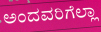
ಅಂದವರಿಗೆಲ್ಲಾ